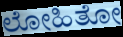
ಲೋಹಿತೋ